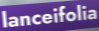
lanceifolia